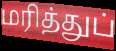
மரித்துப்